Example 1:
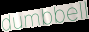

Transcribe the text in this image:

dumbbell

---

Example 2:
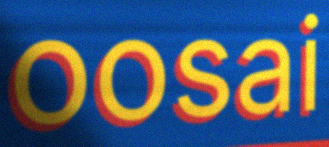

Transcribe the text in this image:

oosai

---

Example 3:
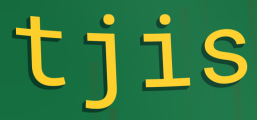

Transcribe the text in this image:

tjis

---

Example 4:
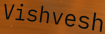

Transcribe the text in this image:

Vishvesh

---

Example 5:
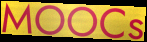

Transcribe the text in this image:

MOOCs